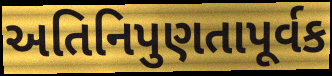
અતિનિપુણતાપૂર્વક